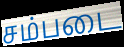
சம்படை